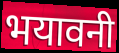
भयावनी